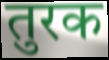
तुरक